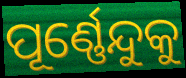
ପୂର୍ଣ୍ଣେନ୍ଦୁକୁ